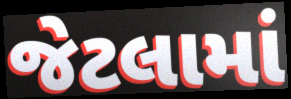
જેટલામાં